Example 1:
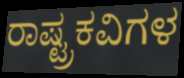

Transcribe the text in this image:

ರಾಷ್ಟ್ರಕವಿಗಳ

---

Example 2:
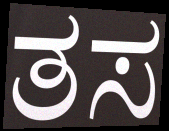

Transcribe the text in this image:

ತಸ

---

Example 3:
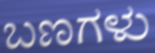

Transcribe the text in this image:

ಬಣಗಳು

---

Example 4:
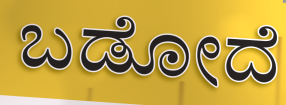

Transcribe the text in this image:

ಬಡೋದೆ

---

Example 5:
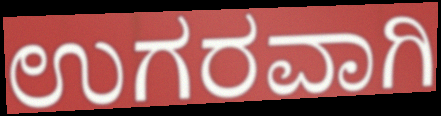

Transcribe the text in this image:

ಉಗರವಾಗಿ